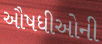
ઔષધીઓની